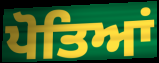
ਪੋਤਿਆਂ